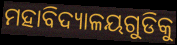
ମହାବିଦ୍ୟାଳୟଗୁଡିକୁ